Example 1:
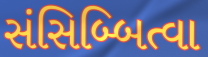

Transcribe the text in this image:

સંસિબ્બિત્વા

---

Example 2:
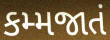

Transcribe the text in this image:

કમ્મજાતં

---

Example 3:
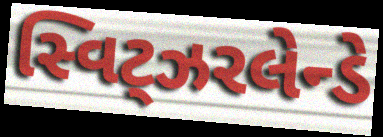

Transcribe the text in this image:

સ્વિટ્ઝરલેન્ડે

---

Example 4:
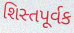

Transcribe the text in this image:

શિસ્તપૂર્વક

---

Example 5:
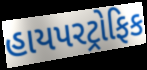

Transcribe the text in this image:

હાયપરટ્રોફિક